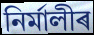
নিৰ্মালীৰ